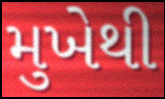
મુખેથી